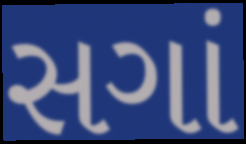
સગાં